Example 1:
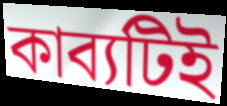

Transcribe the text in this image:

কাব্যটিই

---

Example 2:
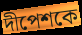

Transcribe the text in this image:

দীপেশকে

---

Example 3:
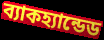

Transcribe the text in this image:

ব্যাকহ্যান্ডেড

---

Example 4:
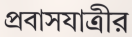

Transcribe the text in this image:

প্রবাসযাত্রীর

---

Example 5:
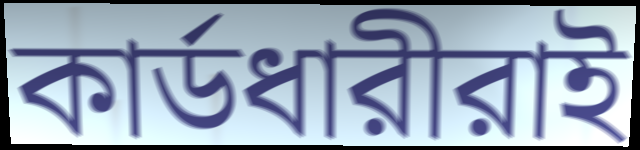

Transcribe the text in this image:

কার্ডধারীরাই